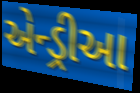
એન્ડ્રીઆ